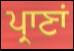
ਪ੍ਰਾਣਾਂ